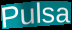
Pulsa